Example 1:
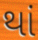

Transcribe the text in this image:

થાં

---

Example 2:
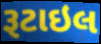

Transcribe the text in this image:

રૂટાઇલ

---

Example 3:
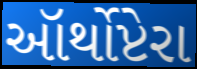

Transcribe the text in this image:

ઑર્થોપ્ટેરા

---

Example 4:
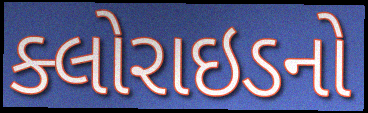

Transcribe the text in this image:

ક્લોરાઇડનો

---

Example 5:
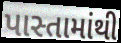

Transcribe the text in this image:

પાસ્તામાંથી